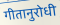
गीतानुरोधी